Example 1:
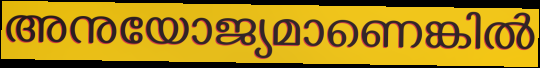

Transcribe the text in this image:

അനുയോജ്യമാണെങ്കിൽ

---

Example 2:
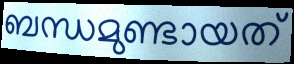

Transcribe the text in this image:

ബന്ധമുണ്ടായത്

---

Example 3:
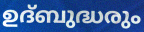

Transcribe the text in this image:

ഉദ്ബുദ്ധരും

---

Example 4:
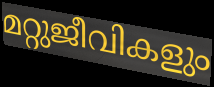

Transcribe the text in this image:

മറ്റുജീവികളും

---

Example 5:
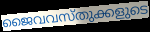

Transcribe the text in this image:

ജൈവവസ്തുക്കളുടെ